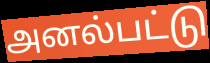
அனல்பட்டு